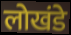
लोखंडे